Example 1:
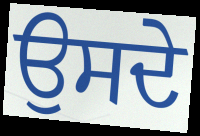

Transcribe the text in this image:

ਉਸਦੇ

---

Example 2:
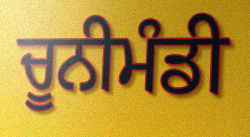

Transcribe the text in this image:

ਚੂਨੀਮੰਡੀ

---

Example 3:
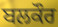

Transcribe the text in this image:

ਬਲਕੌਰ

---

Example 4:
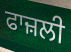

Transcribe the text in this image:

ਫਾਜ਼ਲੀ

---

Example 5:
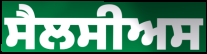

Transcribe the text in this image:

ਸੈਲਸੀਅਸ